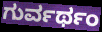
ಗುರ್ವರ್ಥಂ